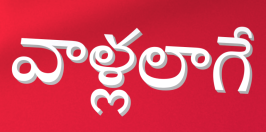
వాళ్లలాగే